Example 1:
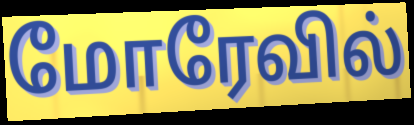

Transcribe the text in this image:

மோரேவில்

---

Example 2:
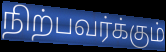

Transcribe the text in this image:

நிற்பவர்க்கும்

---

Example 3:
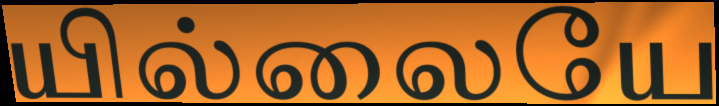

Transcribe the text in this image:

யில்லையே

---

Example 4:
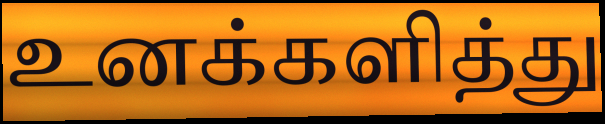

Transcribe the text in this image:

உனக்களித்து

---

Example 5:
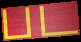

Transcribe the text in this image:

பட